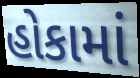
હોકામાં